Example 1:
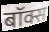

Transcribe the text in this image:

बॉक्स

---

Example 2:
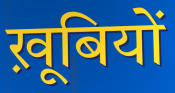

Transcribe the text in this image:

ख़ूबियों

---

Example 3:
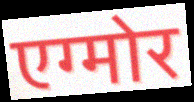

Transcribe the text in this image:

एग्मोर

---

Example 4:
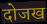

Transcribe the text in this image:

दोजख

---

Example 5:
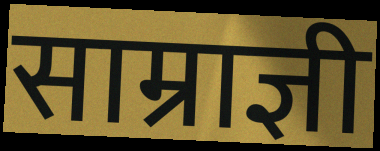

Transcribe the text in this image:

साम्राज्ञी